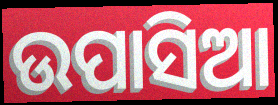
ଉପାସିଆ